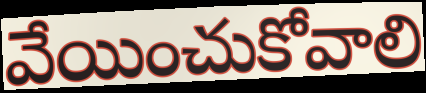
వేయించుకోవాలి